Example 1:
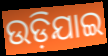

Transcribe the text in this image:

ଉଡ଼ିଯାଇ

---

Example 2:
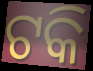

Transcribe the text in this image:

ଟକି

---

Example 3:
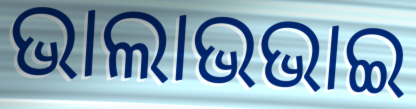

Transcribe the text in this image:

ଭାଲାଭଭାଇ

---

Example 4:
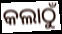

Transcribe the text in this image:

କଲାଠୁଁ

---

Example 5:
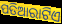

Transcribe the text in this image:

ପତିଆରାଟିଏ